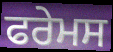
ਫਰੇਮਸ